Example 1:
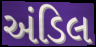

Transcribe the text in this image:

અંડિલ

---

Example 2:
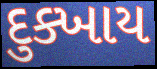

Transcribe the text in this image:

દુક્ખાય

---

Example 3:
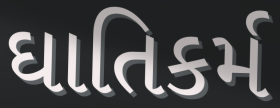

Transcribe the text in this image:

ઘાતિકર્મ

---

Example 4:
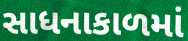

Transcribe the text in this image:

સાધનાકાળમાં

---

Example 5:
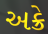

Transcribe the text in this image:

અક્રે